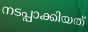
നടപ്പാക്കിയത്